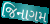
જિનાગમ